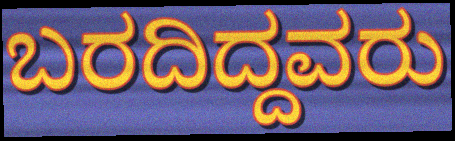
ಬರದಿದ್ದವರು